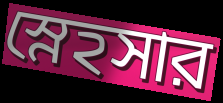
স্নেহসার